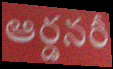
ఆర్డనరీ